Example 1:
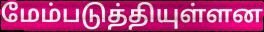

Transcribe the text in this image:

மேம்படுத்தியுள்ளன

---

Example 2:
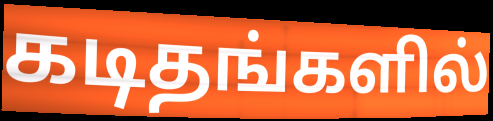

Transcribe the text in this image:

கடிதங்களில்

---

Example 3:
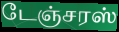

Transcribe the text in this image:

டேஞ்சரஸ்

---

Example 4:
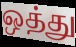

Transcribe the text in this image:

ஒத்து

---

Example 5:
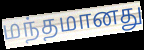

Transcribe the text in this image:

மந்தமானது